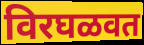
विरघळवत